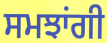
ਸਮਝਾਂਗੀ